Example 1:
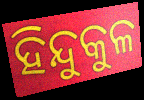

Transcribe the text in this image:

ହିନ୍ଦୁକୁଳ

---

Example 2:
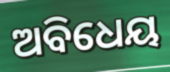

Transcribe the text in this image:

ଅବିଧେୟ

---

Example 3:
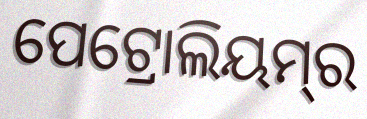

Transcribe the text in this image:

ପେଟ୍ରୋଲିୟମ୍‌ର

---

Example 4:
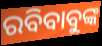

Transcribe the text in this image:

ରବିବାବୁଙ୍କ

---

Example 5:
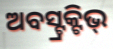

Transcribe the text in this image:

ଅବସ୍ଟ୍ରକ୍ଟିଭ୍